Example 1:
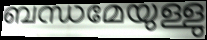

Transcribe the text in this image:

ബന്ധമേയുള്ളു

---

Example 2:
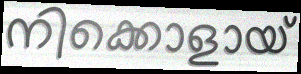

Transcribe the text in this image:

നിക്കൊളായ്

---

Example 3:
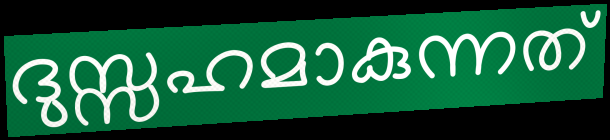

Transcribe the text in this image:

ദുസ്സഹമാകുന്നത്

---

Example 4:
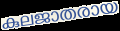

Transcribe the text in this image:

കുലജാതരായ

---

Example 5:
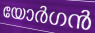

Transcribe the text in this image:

യോർഗൻ